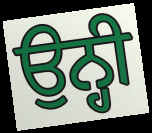
ਉਨ੍ਹੀ